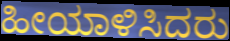
ಹೀಯಾಳಿಸಿದರು